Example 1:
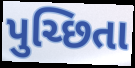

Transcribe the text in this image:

પુચ્છિતા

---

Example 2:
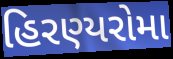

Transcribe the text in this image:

હિરણ્યરોમા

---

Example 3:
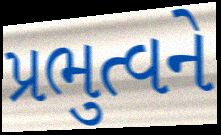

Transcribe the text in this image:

પ્રભુત્વને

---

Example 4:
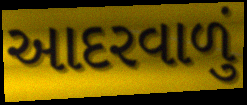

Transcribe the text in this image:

આદરવાળું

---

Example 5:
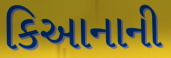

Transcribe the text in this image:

કિઆનાની